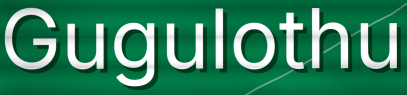
Gugulothu